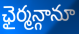
ఛైర్మన్గానూ